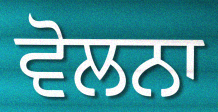
ਵੋਲਨਾ